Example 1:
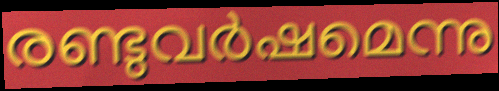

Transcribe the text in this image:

രണ്ടുവർഷമെന്നു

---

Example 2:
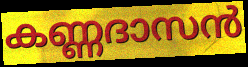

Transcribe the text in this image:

കണ്ണദാസൻ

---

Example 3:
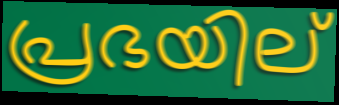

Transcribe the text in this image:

പ്രഭയില്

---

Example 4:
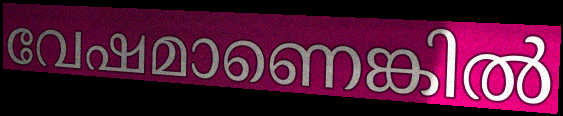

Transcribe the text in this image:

വേഷമാണെങ്കിൽ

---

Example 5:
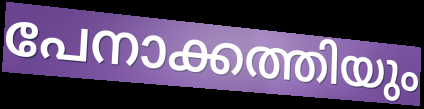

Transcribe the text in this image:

പേനാക്കത്തിയും